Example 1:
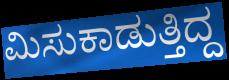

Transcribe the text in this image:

ಮಿಸುಕಾಡುತ್ತಿದ್ದ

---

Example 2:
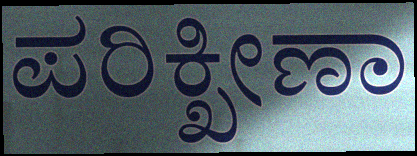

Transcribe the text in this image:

ಪರಿಕ್ಖೀಣಾ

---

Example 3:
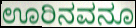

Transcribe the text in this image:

ಊರಿನವನೂ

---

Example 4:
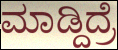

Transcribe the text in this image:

ಮಾಡ್ದಿದ್ರೆ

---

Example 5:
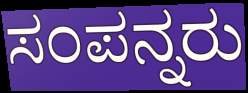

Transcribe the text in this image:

ಸಂಪನ್ನರು